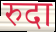
रुदा